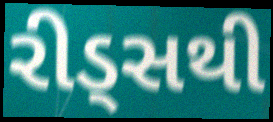
રીડ્સથી